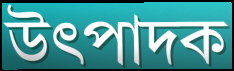
উৎপাদক